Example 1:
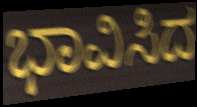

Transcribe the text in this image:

ಭಾವಿಸಿದ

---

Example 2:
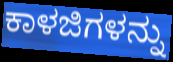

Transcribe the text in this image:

ಕಾಳಜಿಗಳನ್ನು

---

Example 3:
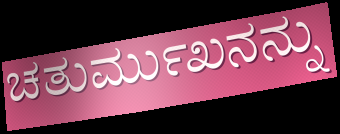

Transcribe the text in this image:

ಚತುರ್ಮುಖನನ್ನು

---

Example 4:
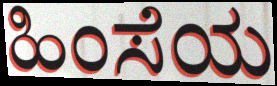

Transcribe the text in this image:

ಹಿಂಸೆಯ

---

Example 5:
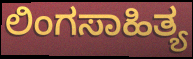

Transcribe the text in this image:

ಲಿಂಗಸಾಹಿತ್ಯ